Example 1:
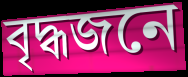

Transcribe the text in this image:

বৃদ্ধজনে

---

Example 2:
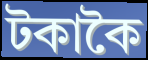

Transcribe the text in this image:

টকাকৈ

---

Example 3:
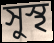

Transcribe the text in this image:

সুস্থ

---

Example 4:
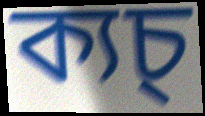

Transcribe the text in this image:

ক্যচ্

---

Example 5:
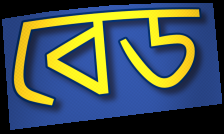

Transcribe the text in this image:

বেড